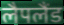
लैपलैंड